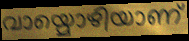
വായ്മൊഴിയാണ്